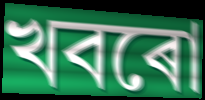
খবৰো